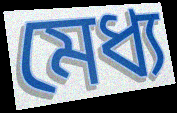
মেধ্য